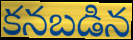
కనబడిన